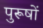
पुरूषों